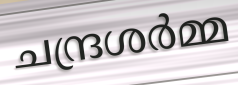
ചന്ദ്രശർമ്മ